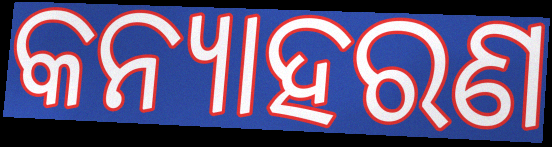
କନ୍ୟାହରଣ